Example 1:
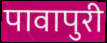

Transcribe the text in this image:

पावापुरी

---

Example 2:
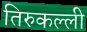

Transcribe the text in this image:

तिरुकल्ली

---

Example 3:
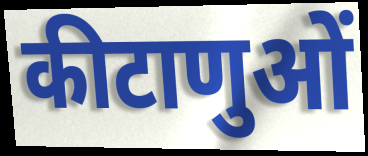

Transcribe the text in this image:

कीटाणुओं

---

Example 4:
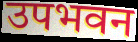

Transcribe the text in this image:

उपभवन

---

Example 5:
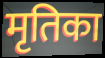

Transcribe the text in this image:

मृतिका